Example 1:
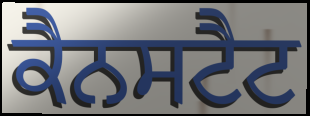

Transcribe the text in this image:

ਕੈਨਸਟੈਟ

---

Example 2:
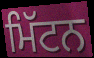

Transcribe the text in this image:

ਮਿੱਟਨ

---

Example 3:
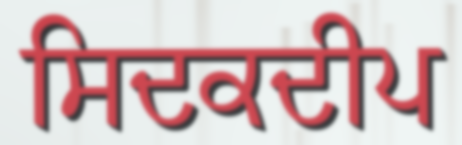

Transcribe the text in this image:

ਸਿਦਕਦੀਪ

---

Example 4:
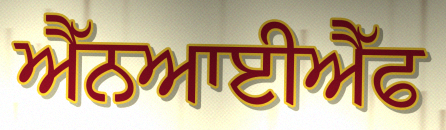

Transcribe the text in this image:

ਐੱਨਆਈਐੱਫ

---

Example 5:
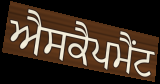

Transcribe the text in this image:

ਐਸਕੈਪਮੈਂਟ